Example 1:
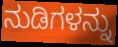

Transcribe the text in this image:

ನುಡಿಗಳನ್ನು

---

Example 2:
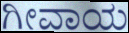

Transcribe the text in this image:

ಗೀವಾಯ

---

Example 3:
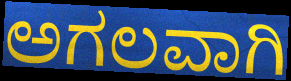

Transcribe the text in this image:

ಅಗಲವಾಗಿ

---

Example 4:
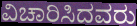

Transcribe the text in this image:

ವಿಚಾರಿಸಿದವರು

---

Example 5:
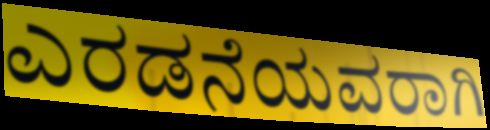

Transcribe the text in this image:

ಎರಡನೆಯವರಾಗಿ